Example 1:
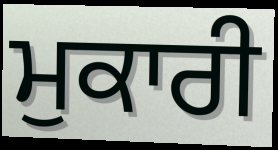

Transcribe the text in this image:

ਮੁਕਾਰੀ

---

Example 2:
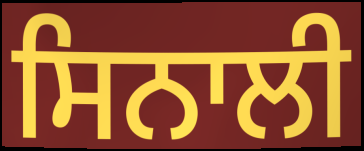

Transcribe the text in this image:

ਸਿਨਾਲੀ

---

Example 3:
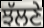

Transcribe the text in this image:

ਝੱਲਣੇ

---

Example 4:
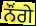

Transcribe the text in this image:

ਨੌਂਗੇ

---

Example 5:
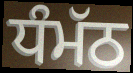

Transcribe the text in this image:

ਧੰਮੱਠ